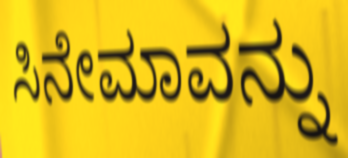
ಸಿನೇಮಾವನ್ನು